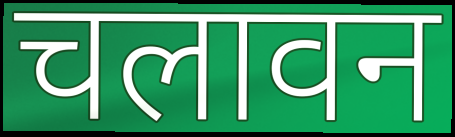
चलावन